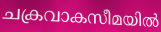
ചക്രവാകസീമയിൽ